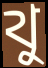
থু